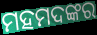
ମହମଦଙ୍କର